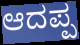
ಆದಪ್ಪ